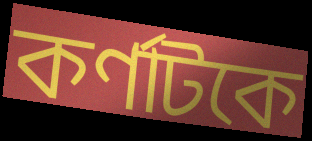
কর্ণাটকে